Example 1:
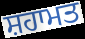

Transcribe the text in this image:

ਸ਼ਹਾਮਤ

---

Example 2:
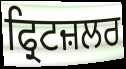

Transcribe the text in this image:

ਫ੍ਰਿਟਜ਼ਲਰ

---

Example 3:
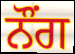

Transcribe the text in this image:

ਨੌਂਗ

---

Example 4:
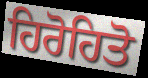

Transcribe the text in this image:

ਹਿਰੋਹਿਤੋ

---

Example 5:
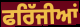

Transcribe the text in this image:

ਫਰਿੱਜੀਆਂ